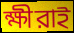
ক্ষীরাই